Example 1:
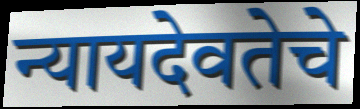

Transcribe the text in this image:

न्यायदेवतेचे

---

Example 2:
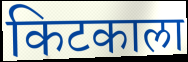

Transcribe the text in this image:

किटकाला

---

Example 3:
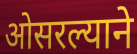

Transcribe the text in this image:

ओसरल्याने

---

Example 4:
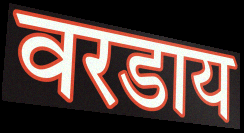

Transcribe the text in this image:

वरडाय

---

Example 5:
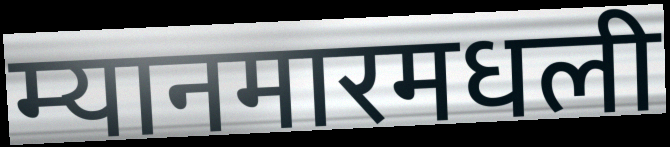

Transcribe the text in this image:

म्यानमारमधली